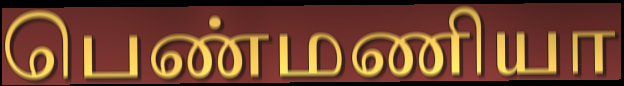
பெண்மணியா